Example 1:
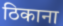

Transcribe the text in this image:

ठिकाना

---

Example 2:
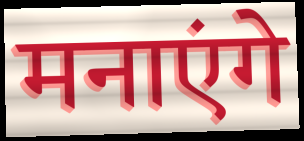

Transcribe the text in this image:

मनाएंगे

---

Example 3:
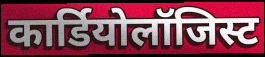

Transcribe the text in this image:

कार्डियोलॉजिस्ट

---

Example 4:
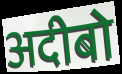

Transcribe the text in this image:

अदीबो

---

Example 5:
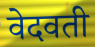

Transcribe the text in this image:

वेदवती